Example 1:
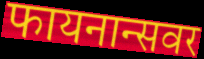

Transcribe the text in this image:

फायनान्सवर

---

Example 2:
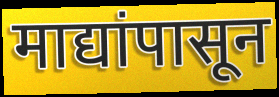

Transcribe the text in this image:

माद्यांपासून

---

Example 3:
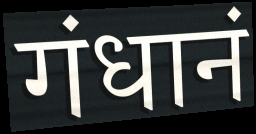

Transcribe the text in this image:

गंधानं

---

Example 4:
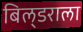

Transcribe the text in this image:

बिल्डराला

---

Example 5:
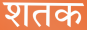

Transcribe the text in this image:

शतक